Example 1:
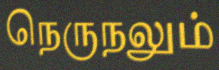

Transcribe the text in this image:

நெருநலும்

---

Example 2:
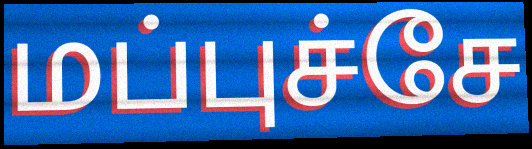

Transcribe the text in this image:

மப்புச்சே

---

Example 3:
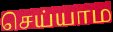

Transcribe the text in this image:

செய்யாம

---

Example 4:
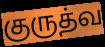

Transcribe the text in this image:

குருத்வ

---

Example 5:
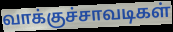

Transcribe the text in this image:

வாக்குச்சாவடிகள்